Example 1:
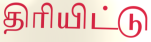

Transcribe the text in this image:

திரியிட்டு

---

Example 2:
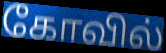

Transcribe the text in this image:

கோவில்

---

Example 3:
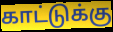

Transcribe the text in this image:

காட்டுக்கு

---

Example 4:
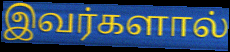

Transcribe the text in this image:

இவர்களால்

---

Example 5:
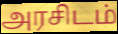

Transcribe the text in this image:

அரசிடம்